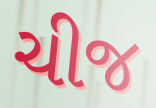
ચીજ